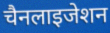
चैनलाइजेशन